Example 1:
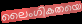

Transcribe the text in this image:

ലൈംഗികതയെ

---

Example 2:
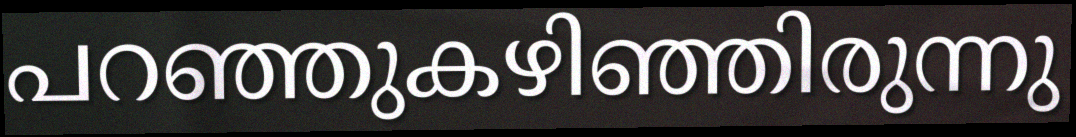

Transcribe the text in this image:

പറഞ്ഞുകഴിഞ്ഞിരുന്നു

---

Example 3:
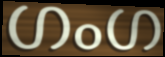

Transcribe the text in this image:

ഗംഗ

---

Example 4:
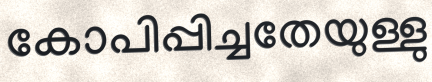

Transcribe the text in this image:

കോപിപ്പിച്ചതേയുള്ളു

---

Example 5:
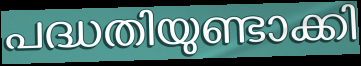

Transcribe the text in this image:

പദ്ധതിയുണ്ടാക്കി